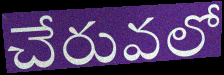
చేరువలో